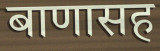
बाणासह